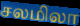
சலமிலா